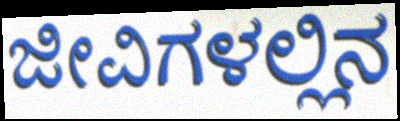
ಜೀವಿಗಳಲ್ಲಿನ